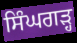
ਸਿੰਘਗੜ੍ਹ